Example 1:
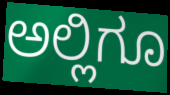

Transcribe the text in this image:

ಅಲ್ಲಿಗೂ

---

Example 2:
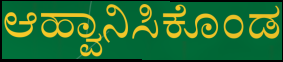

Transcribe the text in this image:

ಆಹ್ವಾನಿಸಿಕೊಂಡ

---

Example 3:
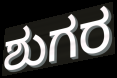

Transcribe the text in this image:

ಶುಗರ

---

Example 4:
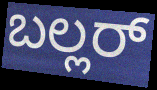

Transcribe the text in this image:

ಬಲ್ಲರ್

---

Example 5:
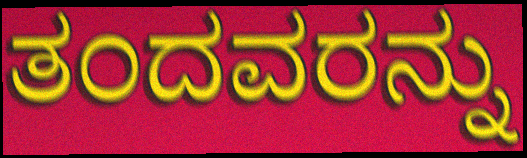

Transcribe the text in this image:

ತಂದವರನ್ನು